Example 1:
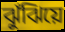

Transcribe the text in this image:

ঝুঁঝিয়ে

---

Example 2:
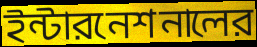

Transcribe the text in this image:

ইন্টারনেশনালের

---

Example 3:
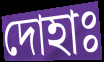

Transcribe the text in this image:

দোহাঃ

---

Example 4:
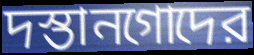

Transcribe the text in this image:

দস্তানগোদের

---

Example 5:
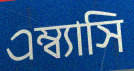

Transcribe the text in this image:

এম্ব্যাসি